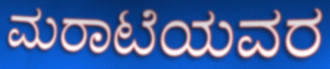
ಮರಾಟೆಯವರ